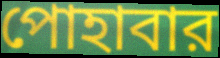
পোহাবার